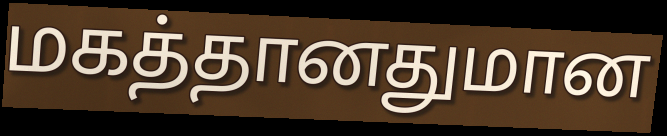
மகத்தானதுமான